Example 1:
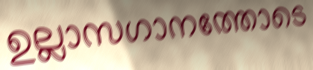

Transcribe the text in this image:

ഉല്ലാസഗാനത്തോടെ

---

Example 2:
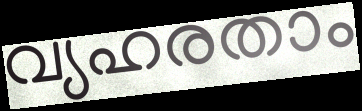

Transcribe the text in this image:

വ്യഹരതാം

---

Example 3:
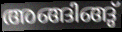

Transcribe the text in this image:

അങ്ങിങ്ങു്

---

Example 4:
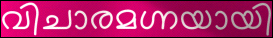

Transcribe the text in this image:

വിചാരമഗ്നയായി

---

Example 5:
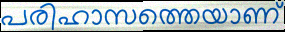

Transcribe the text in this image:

പരിഹാസത്തെയാണ്